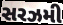
સરઝમી